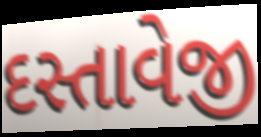
દસ્તાવેજી